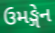
ઉમઙ્ગેન